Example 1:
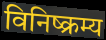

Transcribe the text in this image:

विनिष्क्रम्य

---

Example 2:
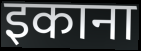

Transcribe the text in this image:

इकाना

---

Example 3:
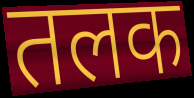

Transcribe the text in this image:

तलक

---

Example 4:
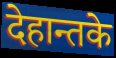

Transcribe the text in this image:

देहान्तके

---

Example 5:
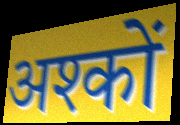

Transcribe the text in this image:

अश्कों